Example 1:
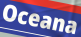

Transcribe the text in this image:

Oceana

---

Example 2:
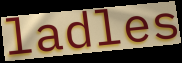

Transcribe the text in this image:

ladles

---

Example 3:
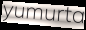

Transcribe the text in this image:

yumurta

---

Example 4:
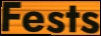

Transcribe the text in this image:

Fests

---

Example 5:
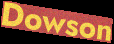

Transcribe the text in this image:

Dowson